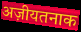
अज़ीयतनाक